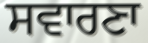
ਸਵਾਰਣਾ